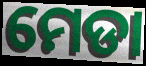
ମେଡା